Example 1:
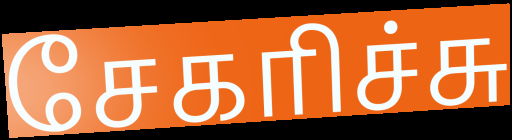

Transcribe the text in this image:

சேகரிச்சு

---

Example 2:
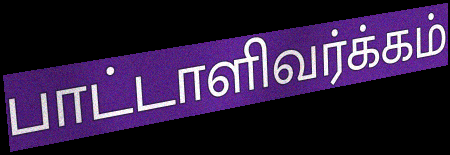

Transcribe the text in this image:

பாட்டாளிவர்க்கம்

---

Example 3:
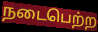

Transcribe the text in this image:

நடைபெற்ற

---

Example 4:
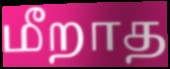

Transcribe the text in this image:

மீறாத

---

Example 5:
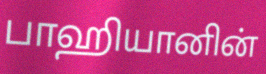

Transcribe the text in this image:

பாஹியானின்